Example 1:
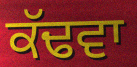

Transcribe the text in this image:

ਕੱਢਵਾ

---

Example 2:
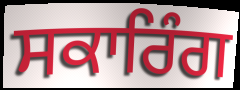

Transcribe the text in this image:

ਸਕਾਰਿੰਗ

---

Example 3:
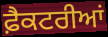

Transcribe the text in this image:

ਫ਼ੈਕਟਰੀਆਂ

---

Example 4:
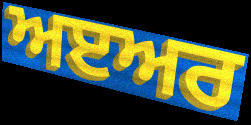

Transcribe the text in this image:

ਅੲਅਰ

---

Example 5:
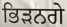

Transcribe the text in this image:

ਭਿੜਨਗੇ